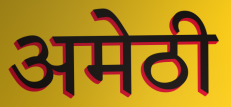
अमेठी